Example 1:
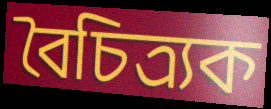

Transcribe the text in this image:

বৈচিত্ৰ্যক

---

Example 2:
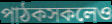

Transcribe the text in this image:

পাঠকসকলেও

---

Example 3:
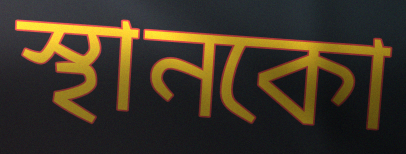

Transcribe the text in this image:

স্থানকো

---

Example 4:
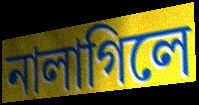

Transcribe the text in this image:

নালাগিলে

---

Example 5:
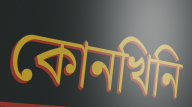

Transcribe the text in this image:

কোনখিনি